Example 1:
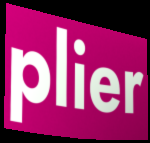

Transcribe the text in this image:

plier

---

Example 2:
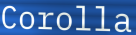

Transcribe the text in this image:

Corolla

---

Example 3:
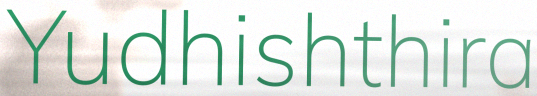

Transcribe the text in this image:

Yudhishthira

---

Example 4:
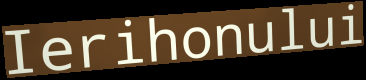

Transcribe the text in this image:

Ierihonului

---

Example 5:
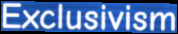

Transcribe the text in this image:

Exclusivism